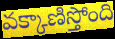
వక్కాణిస్తోంది